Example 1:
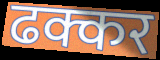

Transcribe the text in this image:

ढक्कर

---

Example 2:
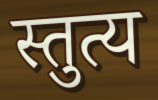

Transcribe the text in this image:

स्तुत्य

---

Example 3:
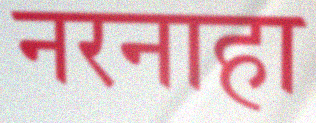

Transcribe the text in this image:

नरनाहा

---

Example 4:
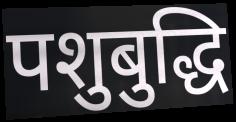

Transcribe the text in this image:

पशुबुद्धि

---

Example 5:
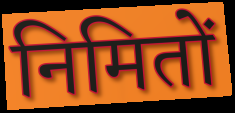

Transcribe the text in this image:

निमितों